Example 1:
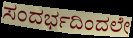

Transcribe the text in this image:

ಸಂದರ್ಭದಿಂದಲೇ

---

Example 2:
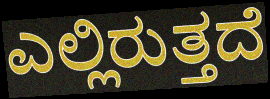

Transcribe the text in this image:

ಎಲ್ಲಿರುತ್ತದೆ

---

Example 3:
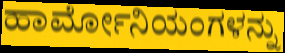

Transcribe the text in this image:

ಹಾರ್ಮೋನಿಯಂಗಳನ್ನು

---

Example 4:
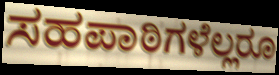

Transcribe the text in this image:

ಸಹಪಾಠಿಗಳೆಲ್ಲರೂ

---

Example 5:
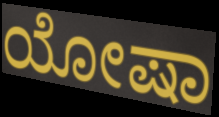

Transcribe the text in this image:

ಯೋಷಾ